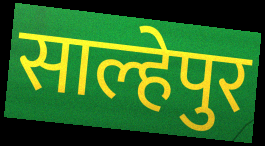
साल्हेपुर